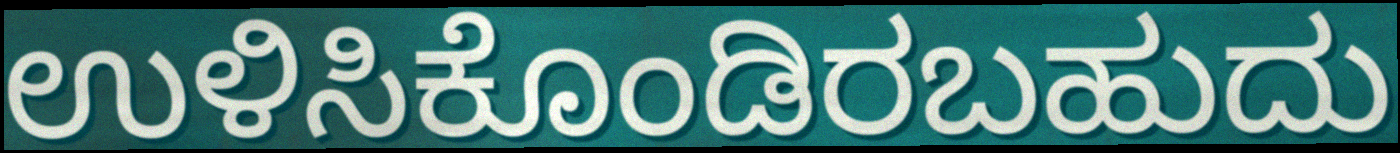
ಉಳಿಸಿಕೊಂಡಿರಬಹುದು